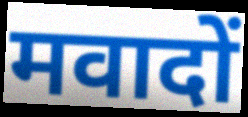
मवादों